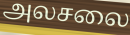
அலசலை